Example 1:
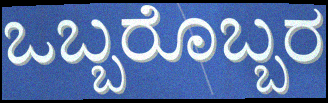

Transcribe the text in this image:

ಒಬ್ಬರೊಬ್ಬರ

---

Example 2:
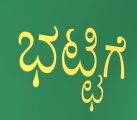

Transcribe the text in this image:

ಭಟ್ಟಿಗೆ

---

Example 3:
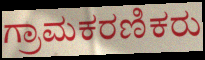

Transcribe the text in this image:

ಗ್ರಾಮಕರಣಿಕರು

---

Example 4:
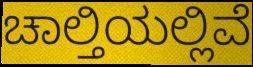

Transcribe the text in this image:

ಚಾಲ್ತಿಯಲ್ಲಿವೆ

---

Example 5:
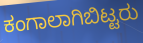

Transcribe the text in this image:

ಕಂಗಾಲಾಗಿಬಿಟ್ಟರು